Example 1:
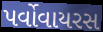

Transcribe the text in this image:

પર્વોવાયરસ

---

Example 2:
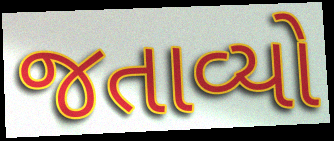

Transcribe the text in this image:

જતાવ્યો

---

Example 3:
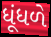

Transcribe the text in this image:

ધૂંધળે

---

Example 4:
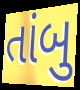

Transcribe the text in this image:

તાંબુ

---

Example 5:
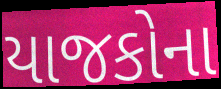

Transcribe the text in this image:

યાજકોના